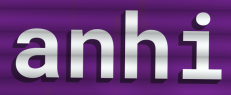
anhi